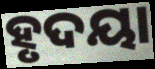
ହୃଦୟା